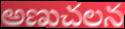
అణుచలన